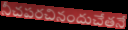
నీచపరచినందుచేతనే